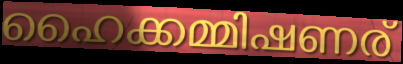
ഹൈക്കമ്മിഷണര്